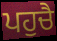
ਪਹੁਚੈ